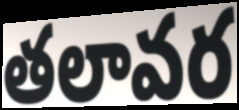
తలావర